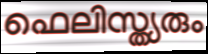
ഫെലിസ്ത്യരും